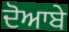
ਦੋਆਬੇ